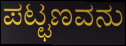
ಪಟ್ಟಣವನು